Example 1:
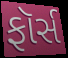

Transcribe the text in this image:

ફૉર્સ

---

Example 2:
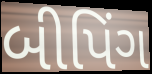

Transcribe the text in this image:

બીપિંગ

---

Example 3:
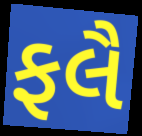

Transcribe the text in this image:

ફલૈ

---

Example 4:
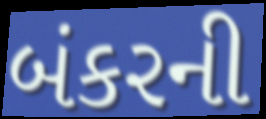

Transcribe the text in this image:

બંકરની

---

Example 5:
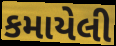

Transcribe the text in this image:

કમાયેલી